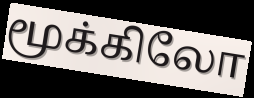
மூக்கிலோ